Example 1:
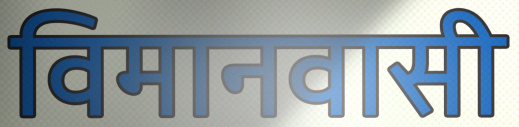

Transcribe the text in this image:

विमानवासी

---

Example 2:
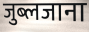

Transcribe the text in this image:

जुब्लजाना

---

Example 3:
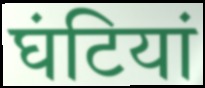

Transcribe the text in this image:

घंटियां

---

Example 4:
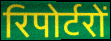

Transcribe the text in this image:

रिपोर्टरों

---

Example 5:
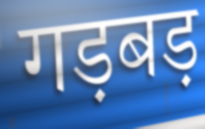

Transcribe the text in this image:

गड़बड़